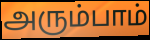
அரும்பாம்